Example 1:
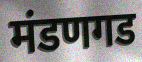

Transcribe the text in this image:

मंडणगड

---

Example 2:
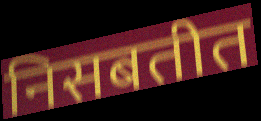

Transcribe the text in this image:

निसबतीत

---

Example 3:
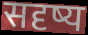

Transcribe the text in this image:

सदृष्य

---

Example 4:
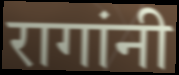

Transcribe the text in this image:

रागांनी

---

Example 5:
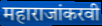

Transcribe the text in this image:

महाराजांकरवी